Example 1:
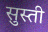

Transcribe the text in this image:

सुस्‍ती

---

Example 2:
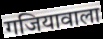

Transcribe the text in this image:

गजियावाला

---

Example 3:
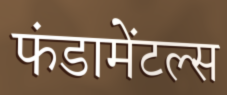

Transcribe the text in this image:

फंडामेंटल्स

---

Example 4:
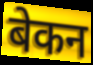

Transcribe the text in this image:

बेकन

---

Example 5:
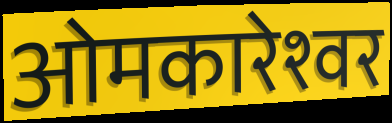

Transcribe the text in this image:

ओमकारेश्वर